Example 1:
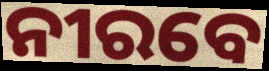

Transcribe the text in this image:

ନୀରବେ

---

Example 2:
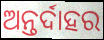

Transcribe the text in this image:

ଅନ୍ତର୍ଦାହର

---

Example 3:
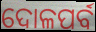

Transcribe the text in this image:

ଦୋଳପର୍ବ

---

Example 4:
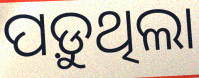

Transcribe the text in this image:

ପଡ଼ୁଥିଲା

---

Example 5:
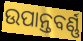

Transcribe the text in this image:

ଉପାନ୍ତବର୍ଣ୍ଣ